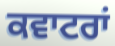
ਕਵਾਟਰਾਂ